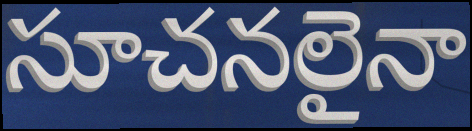
సూచనలైనా